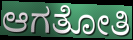
ಆಗತೋತಿ